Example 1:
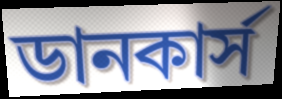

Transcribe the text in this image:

ডানকার্স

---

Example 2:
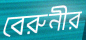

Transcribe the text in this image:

বেরুনীর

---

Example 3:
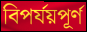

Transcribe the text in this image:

বিপর্যয়পূর্ণ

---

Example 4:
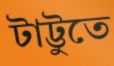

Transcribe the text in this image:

টাট্টুতে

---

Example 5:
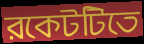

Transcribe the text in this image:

রকেটটিতে